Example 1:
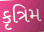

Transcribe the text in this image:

કૃત્રિમ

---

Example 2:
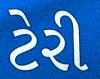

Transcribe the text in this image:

ટેરી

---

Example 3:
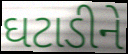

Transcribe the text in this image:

ઘટાડીને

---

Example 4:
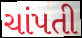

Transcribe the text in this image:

ચાંપતી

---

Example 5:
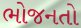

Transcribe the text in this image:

ભોજનતો